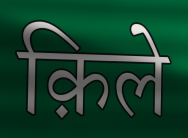
क़िले